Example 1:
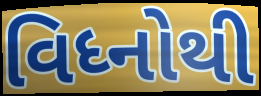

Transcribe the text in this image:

વિધ્નોથી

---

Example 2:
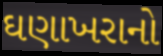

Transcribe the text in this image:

ઘણાખરાનો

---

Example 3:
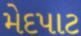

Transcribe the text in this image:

મેદપાટ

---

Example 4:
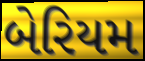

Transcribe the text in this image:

બેરિયમ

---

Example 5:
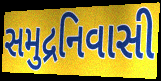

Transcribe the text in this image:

સમુદ્રનિવાસી